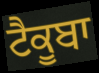
ਟੈਕੂਬਾ